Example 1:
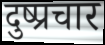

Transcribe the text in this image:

दुष्प्रचार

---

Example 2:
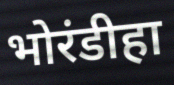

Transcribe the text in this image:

भोरंडीहा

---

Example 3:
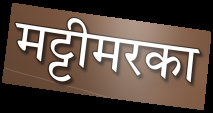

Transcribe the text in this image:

मट्टीमरका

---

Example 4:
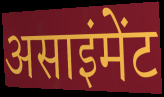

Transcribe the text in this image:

असाइंमेंट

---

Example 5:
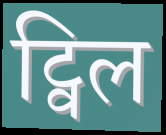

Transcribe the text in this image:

ट्विल